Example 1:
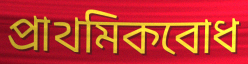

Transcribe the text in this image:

প্রাথমিকবোধ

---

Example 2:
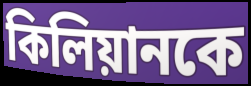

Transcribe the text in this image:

কিলিয়ানকে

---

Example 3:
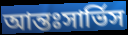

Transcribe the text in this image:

আন্তঃসার্ভিস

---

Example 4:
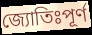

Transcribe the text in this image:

জ্যোতিঃপূর্ণ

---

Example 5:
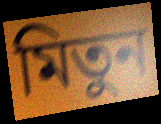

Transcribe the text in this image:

মিতুন